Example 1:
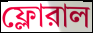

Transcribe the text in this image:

ফ্লোরাল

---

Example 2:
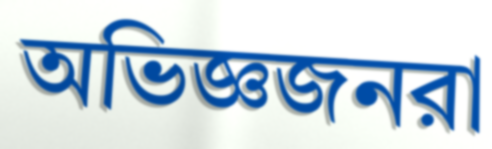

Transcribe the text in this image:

অভিজ্ঞজনরা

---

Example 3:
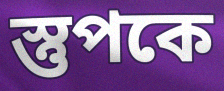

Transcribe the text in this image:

স্তুপকে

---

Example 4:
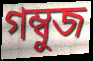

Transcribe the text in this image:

গম্বুজ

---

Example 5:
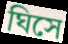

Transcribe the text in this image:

ঘিসে